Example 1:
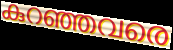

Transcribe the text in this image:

കുറഞ്ഞവരെ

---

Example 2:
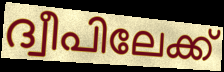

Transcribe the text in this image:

ദ്വീപിലേക്ക്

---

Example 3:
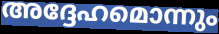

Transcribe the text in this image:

അദ്ദേഹമൊന്നും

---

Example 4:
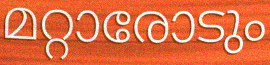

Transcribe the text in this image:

മറ്റാരോടും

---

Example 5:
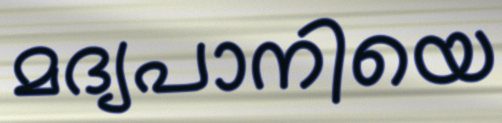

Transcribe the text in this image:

മദ്യപാനിയെ